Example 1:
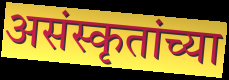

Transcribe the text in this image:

असंस्कृतांच्या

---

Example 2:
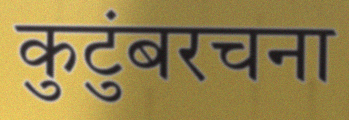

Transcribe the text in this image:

कुटुंबरचना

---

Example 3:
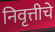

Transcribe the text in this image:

निवृत्तीचे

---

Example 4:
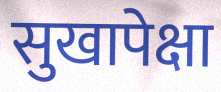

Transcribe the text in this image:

सुखापेक्षा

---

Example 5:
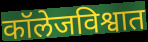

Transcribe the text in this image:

कॉलेजविश्वात